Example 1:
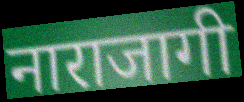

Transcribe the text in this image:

नाराजागी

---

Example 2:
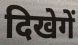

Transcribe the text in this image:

दिखेगें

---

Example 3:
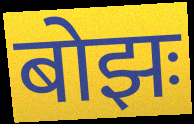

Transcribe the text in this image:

बोझः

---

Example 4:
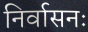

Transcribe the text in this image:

निर्वासनः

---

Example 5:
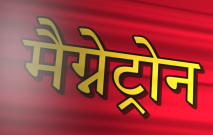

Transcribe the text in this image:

मैग्नेट्रोन